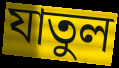
যাতুল